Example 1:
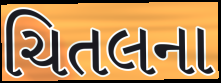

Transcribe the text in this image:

ચિતલના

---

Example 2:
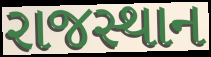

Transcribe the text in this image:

રાજસ્થાન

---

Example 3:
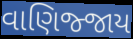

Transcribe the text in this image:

વાણિજ્જાય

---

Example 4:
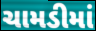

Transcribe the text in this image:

ચામડીમાં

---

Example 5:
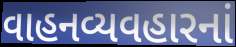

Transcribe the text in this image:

વાહનવ્યવહારનાં